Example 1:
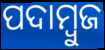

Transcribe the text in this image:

ପଦାମ୍ବୁଜ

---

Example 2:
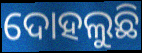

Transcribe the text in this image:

ଦୋହଲୁଛି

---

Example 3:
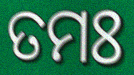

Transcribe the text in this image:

ତମଃ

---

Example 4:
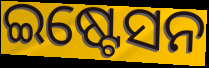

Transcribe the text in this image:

ଇଷ୍ଟେସନ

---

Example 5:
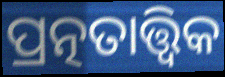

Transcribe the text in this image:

ପ୍ରତ୍ନତାତ୍ତ୍ଵିକ